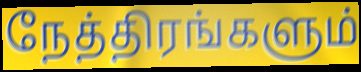
நேத்திரங்களும்